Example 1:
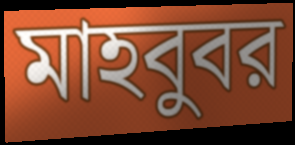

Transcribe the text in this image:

মাহবুবর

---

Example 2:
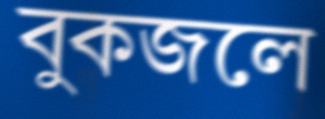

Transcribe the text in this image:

বুকজলে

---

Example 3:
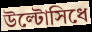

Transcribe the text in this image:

উল্টোসিধে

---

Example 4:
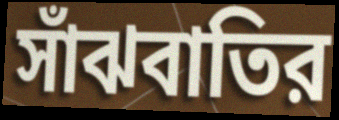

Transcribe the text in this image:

সাঁঝবাতির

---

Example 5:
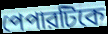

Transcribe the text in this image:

পেপারটিকে